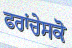
ਫਰਾਂਚੇਸਕੋ